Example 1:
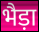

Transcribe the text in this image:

भैड़ा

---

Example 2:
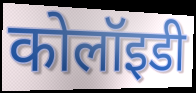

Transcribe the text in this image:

कोलॉइडी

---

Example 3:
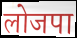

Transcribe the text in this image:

लोजपा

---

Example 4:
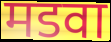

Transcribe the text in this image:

मडवा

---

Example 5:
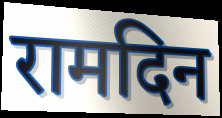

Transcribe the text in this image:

रामदिन